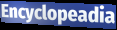
Encyclopeadia